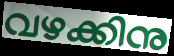
വഴക്കിനു